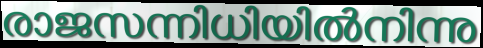
രാജസന്നിധിയിൽനിന്നു